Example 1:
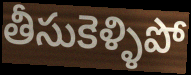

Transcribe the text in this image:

తీసుకెళ్ళిపో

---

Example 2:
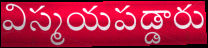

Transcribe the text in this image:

విస్మయపడ్డారు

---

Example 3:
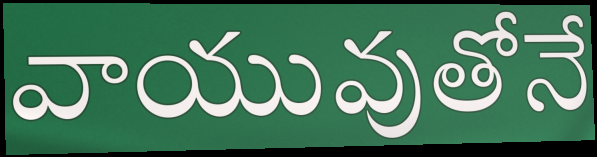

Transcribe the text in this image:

వాయువుతోనే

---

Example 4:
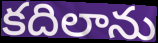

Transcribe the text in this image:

కదిలాను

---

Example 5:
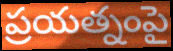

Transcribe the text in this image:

ప్రయత్నంపై